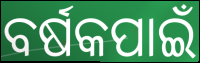
ବର୍ଷକପାଇଁ